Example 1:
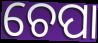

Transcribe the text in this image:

ଚେପା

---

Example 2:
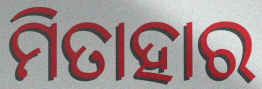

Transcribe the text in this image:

ମିତାହାର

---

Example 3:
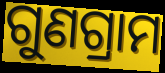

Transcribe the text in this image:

ଗୁଣଗ୍ରାମ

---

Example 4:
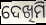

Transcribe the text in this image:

ଦେଖିମି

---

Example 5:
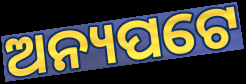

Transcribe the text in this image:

ଅନ୍ୟପଟେ